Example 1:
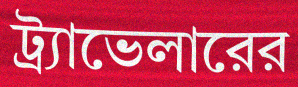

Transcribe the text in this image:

ট্র্যাভেলারের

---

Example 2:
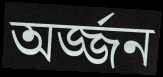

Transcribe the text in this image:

অর্জ্জন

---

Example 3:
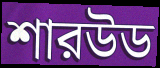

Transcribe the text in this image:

শারউড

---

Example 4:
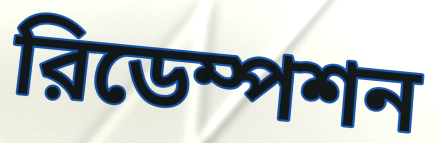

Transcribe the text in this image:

রিডেম্পশন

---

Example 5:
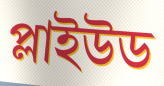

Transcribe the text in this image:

প্লাইউড